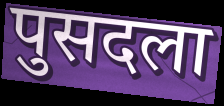
पुसदला